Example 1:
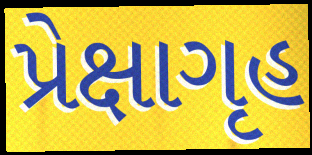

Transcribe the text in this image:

પ્રેક્ષાગૃહ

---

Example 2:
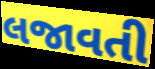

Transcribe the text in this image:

લજાવતી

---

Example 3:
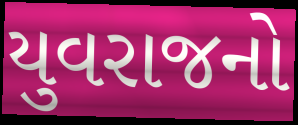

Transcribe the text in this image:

યુવરાજનો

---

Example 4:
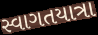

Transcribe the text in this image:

સ્વાગતયાત્રા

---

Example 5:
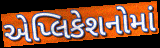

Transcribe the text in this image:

એપ્લિકેશનોમાં